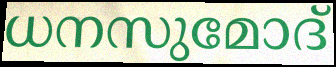
ധനസുമോദ്